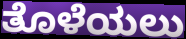
ತೊಳೆಯಲು